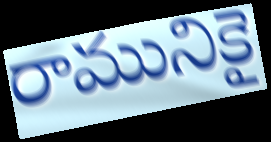
రామునికై